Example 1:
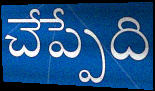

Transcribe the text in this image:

చేప్పేది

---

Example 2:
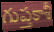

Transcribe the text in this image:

గుప్తకాశీ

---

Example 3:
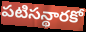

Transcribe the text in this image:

పటిసన్థారకో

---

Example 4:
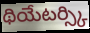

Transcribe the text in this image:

థియేటర్స్కి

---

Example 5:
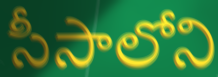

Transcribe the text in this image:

సీసాలోని